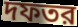
দফতর